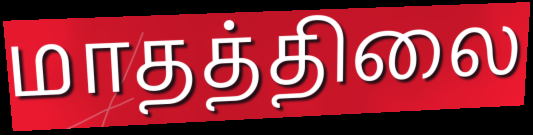
மாதத்திலை